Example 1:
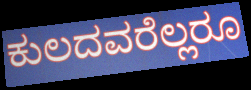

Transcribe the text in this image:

ಕುಲದವರೆಲ್ಲರೂ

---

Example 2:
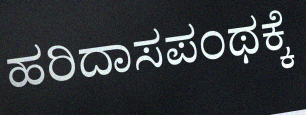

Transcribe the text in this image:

ಹರಿದಾಸಪಂಥಕ್ಕೆ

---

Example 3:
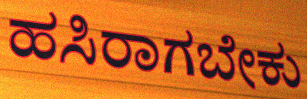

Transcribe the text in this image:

ಹಸಿರಾಗಬೇಕು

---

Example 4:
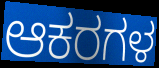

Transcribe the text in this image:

ಆಕರಗಳ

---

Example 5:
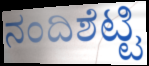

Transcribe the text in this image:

ನಂದಿಶೆಟ್ಟಿ